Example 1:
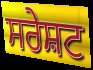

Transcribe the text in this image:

ਸਰੇਸ਼ਟ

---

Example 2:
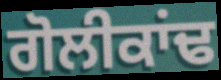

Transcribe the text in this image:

ਗੋਲੀਕਾਂਢ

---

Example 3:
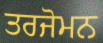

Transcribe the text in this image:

ਤਰਜੋਮਨ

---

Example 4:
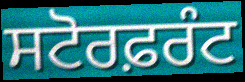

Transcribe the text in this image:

ਸਟੋਰਫ਼ਰੰਟ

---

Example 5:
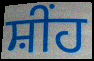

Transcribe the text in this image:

ਸ਼ੀਂਹ